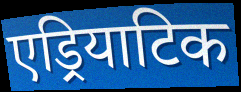
एड्रियाटिक